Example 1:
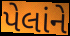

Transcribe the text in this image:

પેલાંને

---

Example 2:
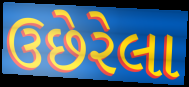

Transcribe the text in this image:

ઉછેરેલા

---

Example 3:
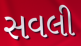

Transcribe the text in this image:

સવલી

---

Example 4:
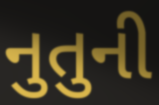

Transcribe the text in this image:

નુતુની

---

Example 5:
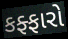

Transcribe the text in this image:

કફ્ફારો